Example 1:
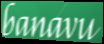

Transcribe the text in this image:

banavu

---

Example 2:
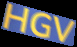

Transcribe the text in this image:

HGV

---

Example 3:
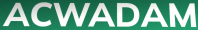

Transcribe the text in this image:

ACWADAM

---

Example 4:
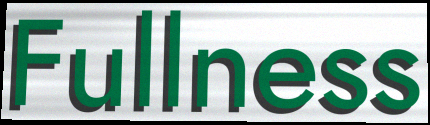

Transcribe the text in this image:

Fullness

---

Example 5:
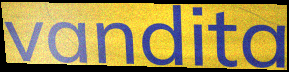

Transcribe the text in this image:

vandita